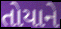
તોયાને